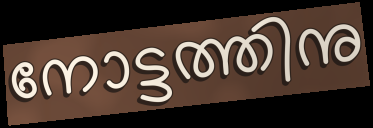
നോട്ടത്തിനു